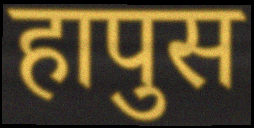
हापुस